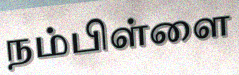
நம்பிள்ளை